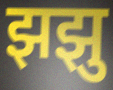
झझु